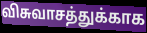
விசுவாசத்துக்காக